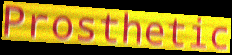
Prosthetic